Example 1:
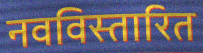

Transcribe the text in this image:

नवविस्तारित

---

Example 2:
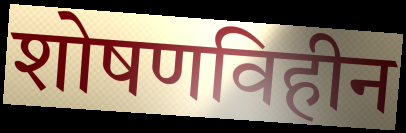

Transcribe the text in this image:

शोषणविहीन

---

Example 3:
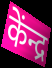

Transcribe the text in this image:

केंन्द्र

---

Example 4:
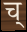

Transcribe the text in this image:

च्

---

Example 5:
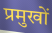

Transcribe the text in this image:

प्रमुखों